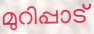
മുറിപ്പാട്